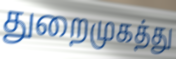
துறைமுகத்து